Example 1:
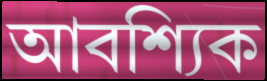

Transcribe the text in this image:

আবশ্যিক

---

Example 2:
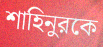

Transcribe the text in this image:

শাহিনুরকে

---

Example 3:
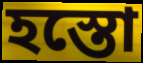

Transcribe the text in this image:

হস্তো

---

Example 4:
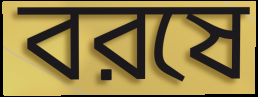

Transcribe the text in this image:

বরষে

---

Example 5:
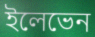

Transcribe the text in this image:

ইলেভেন